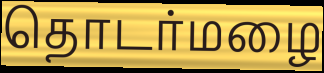
தொடர்மழை